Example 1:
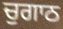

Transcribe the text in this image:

ਚੁਗਾਠ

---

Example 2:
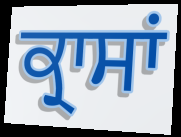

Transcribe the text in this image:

ਕ੍ਰਾਸਾਂ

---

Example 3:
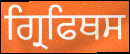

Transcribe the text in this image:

ਗ੍ਰਿਫਿਥਸ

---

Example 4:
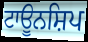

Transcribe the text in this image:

ਟਾਊਨਸ਼ਿਪ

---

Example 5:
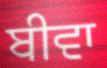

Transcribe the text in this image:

ਬੀਵਾ